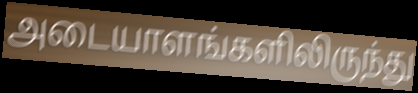
அடையாளங்களிலிருந்து